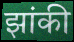
झांकी